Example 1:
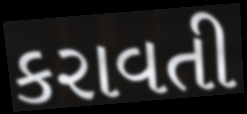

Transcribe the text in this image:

કરાવતી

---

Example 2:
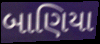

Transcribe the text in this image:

બાણિયા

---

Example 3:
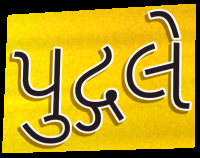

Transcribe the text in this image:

પુદ્ગલે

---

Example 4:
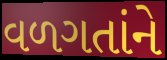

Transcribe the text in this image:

વળગતાંને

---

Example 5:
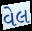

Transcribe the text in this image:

વેલ